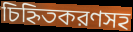
চিহ্নিতকরণসহ